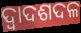
ଦ୍ୱାଦଶଦଳ